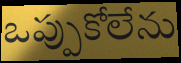
ఒప్పుకోలేను